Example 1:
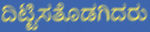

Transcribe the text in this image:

ದಿಟ್ಟಿಸತೊಡಗಿದರು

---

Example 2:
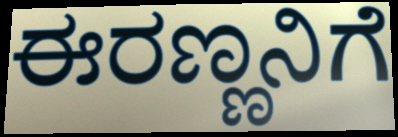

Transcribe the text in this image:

ಈರಣ್ಣನಿಗೆ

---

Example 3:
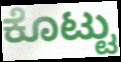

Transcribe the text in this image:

ಕೊಟ್ಟು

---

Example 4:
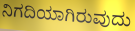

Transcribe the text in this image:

ನಿಗದಿಯಾಗಿರುವುದು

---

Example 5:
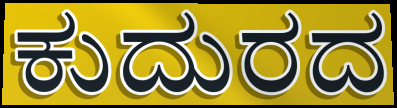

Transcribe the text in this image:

ಕುದುರದ